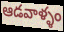
ఆడవాళ్ళం